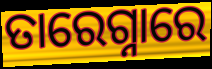
ତାରେଗ୍ନାରେ